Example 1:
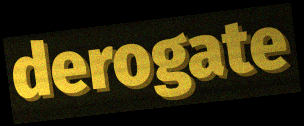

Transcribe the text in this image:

derogate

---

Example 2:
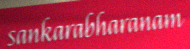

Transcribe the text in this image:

sankarabharanam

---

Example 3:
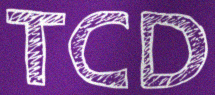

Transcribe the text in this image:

TCD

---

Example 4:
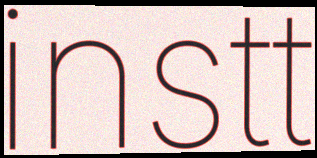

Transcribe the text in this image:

instt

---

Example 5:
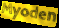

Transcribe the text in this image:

Myoden